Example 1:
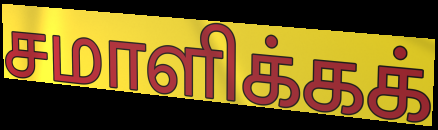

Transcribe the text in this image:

சமாளிக்கக்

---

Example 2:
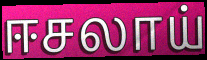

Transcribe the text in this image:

ஈசலாய்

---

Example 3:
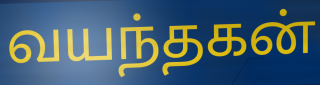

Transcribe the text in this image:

வயந்தகன்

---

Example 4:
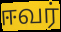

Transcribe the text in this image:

ஈவர்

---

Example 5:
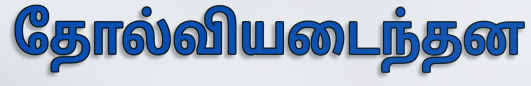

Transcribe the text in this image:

தோல்வியடைந்தன